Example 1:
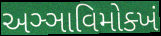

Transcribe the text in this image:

અઞ્ઞાવિમોક્ખં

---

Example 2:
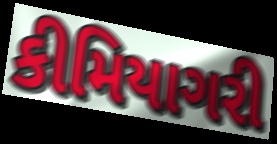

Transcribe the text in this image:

કીમિયાગરી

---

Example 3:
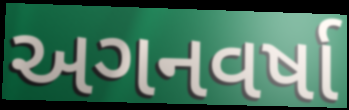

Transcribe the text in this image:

અગનવર્ષા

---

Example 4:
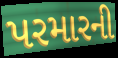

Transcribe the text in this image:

પરમારની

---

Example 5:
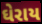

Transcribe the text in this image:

ઘેરાય